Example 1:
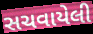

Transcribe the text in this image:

સચવાયેલી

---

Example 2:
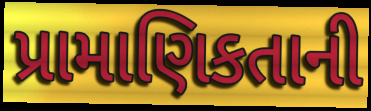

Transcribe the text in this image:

પ્રામાણિકતાની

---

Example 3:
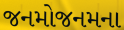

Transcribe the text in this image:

જનમોજનમના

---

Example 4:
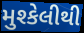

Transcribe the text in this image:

મુશ્કેલીથી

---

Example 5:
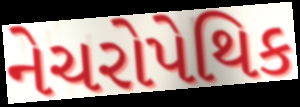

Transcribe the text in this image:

નેચરોપેથિક